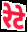
रेटे